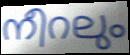
നീറലും